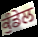
ਕੁੰਡੇਲ